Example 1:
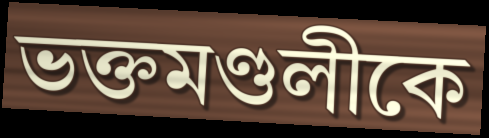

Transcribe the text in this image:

ভক্তমণ্ডলীকে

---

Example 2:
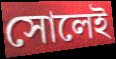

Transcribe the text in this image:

সোলেই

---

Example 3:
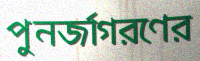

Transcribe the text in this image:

পুনর্জাগরণের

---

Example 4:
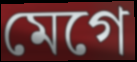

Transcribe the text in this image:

মেগে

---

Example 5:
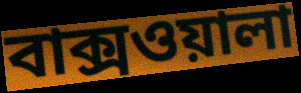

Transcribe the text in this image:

বাক্সওয়ালা